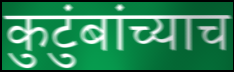
कुटुंबांच्याच